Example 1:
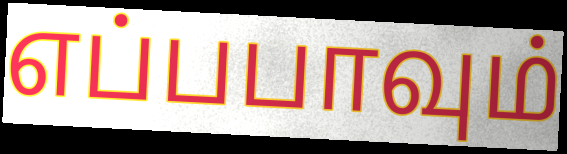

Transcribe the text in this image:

எப்பபாவும்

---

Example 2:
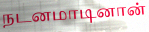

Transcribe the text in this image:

நடனமாடினான்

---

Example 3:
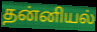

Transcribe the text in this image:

தன்னியல்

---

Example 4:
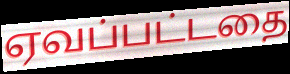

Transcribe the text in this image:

ஏவப்பட்டதை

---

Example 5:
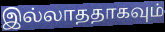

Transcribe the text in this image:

இல்லாததாகவும்